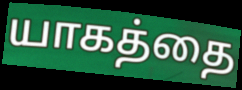
யாகத்தை